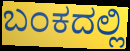
ಬಂಕದಲ್ಲಿ